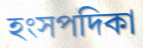
হংসপদিকা